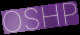
OSHP